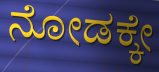
ನೋಡಕ್ಕೇ